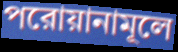
পরোয়ানামূলে